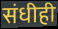
संधीही